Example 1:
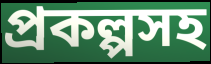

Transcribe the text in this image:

প্রকল্পসহ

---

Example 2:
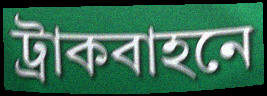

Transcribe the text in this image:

ট্রাকবাহনে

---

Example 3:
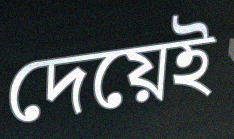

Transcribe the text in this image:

দেয়েই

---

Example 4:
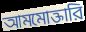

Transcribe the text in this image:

আমমোক্তারি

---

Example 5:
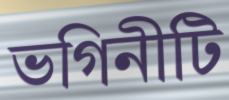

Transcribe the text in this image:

ভগিনীটি